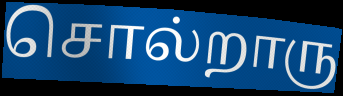
சொல்றாரு